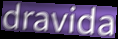
dravida